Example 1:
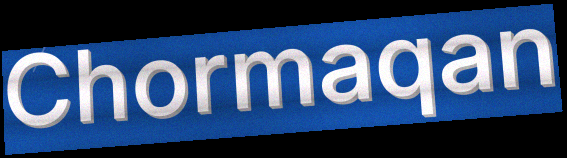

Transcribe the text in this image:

Chormaqan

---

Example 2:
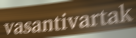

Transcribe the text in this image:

vasantivartak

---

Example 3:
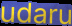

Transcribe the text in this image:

udaru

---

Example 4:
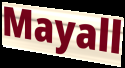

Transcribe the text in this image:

Mayall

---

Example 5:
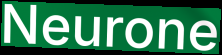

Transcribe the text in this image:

Neurone